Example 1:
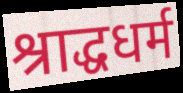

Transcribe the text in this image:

श्राद्धधर्म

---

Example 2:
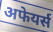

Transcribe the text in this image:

अफेयर्स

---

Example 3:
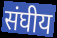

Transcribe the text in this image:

संघीय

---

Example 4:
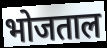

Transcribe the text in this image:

भोजताल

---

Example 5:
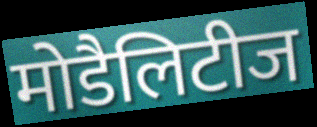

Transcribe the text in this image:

मोडैलिटीज